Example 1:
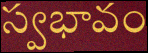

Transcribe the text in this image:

స్వభావం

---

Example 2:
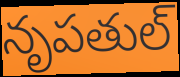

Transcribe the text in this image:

నృపతుల్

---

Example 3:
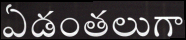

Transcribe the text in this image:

ఏడంతలుగా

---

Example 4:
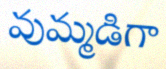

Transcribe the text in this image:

వుమ్మడిగా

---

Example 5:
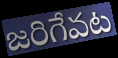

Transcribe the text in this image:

జరిగేవట